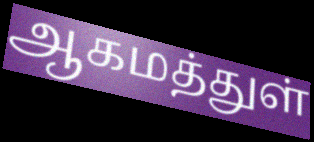
ஆகமத்துள்